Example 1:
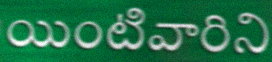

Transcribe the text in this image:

యింటివారిని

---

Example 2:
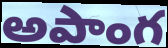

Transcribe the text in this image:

అపాంగ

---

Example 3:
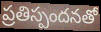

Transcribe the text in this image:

ప్రతిస్పందనతో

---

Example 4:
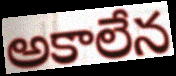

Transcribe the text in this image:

అకాలేన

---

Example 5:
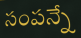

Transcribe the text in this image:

సంపన్నే